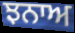
ਝਨਾਅ